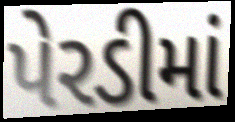
પેરડીમાં